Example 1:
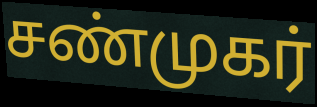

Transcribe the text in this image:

சண்முகர்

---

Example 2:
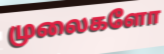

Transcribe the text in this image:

முலைகளோ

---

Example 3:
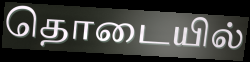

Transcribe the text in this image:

தொடையில்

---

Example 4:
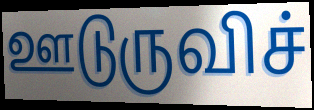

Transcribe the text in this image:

ஊடுருவிச்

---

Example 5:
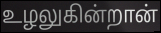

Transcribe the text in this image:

உழலுகின்றான்